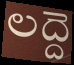
లద్దె